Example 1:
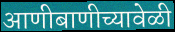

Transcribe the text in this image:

आणीबाणीच्यावेळी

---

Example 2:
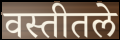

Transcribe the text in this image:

वस्तीतले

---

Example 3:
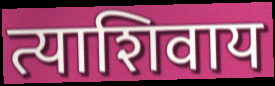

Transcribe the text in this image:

त्याशिवाय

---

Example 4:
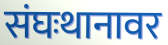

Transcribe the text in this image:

संघःथानावर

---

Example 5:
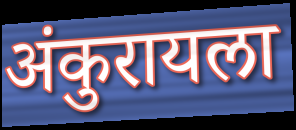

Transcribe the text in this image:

अंकुरायला